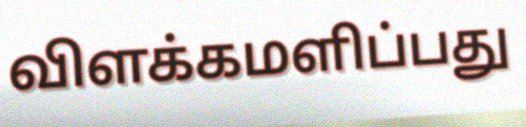
விளக்கமளிப்பது